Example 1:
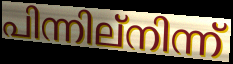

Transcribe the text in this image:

പിന്നില്നിന്ന്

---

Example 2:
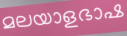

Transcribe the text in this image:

മലയാളഭാഷ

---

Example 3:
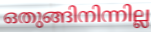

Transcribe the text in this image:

ഒതുങ്ങിനിന്നില്ല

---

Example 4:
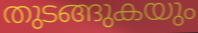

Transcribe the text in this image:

തുടങ്ങുകയും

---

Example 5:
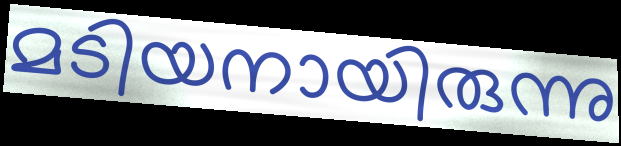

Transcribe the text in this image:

മടിയനായിരുന്നു